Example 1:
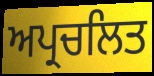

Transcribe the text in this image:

ਅਪ੍ਰਚਲਿਤ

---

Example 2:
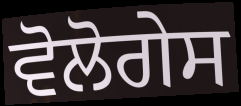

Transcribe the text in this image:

ਵੋਲੋਗੇਸ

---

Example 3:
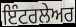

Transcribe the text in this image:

ਇੰਟਰਲੇਅਰ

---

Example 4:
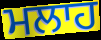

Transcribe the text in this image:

ਮਲਾਹ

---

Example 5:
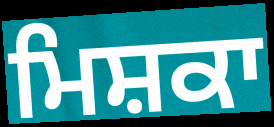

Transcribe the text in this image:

ਮਿਸ਼ਕਾ